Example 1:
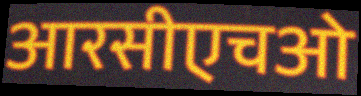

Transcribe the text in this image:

आरसीएचओ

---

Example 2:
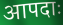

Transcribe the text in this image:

आपदाः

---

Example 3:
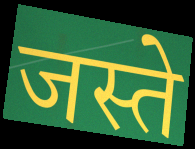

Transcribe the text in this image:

जस्ते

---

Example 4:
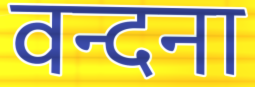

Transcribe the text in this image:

वन्दना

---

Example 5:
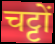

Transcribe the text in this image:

चट्टों